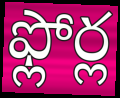
ఫ్లోర్ల